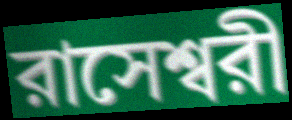
রাসেশ্বরী